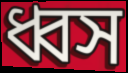
ধ্বস